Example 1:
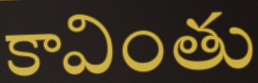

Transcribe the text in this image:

కావింతు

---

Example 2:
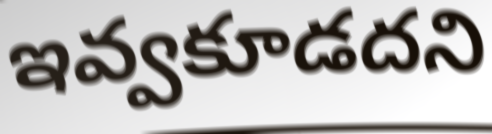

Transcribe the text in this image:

ఇవ్వకూడదని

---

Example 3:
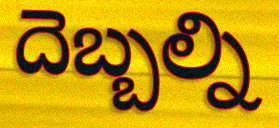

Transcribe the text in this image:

దెబ్బల్ని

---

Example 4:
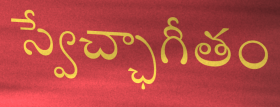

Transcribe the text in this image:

స్వేచ్ఛాగీతం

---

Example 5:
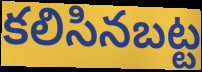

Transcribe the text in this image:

కలిసినబట్ట